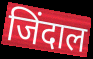
जिंदाल